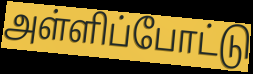
அள்ளிப்போட்டு